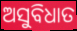
ଅସୁବିଧାତ